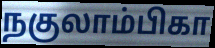
நகுலாம்பிகா